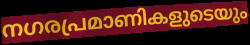
നഗരപ്രമാണികളുടെയും